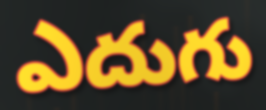
ఎదుగు